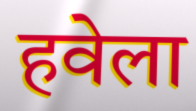
हवेला